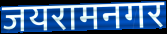
जयरामनगर